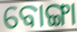
ବୋଙ୍ଗା